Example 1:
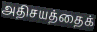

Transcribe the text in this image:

அதிசயத்தைக்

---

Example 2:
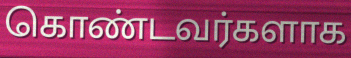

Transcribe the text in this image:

கொண்டவர்களாக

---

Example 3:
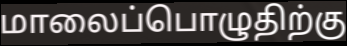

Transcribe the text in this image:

மாலைப்பொழுதிற்கு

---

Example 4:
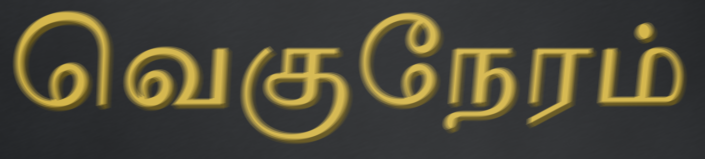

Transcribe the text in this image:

வெகுநேரம்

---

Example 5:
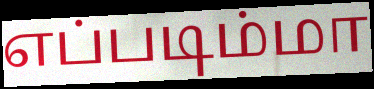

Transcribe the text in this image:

எப்படிம்மா